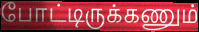
போட்டிருக்கணும்